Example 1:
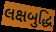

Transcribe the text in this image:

લક્ષબુદ્ધિ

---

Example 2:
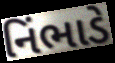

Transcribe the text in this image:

નિંભાડે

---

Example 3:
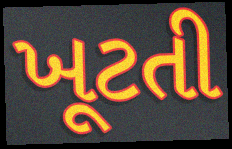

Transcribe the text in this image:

ખૂટતી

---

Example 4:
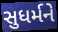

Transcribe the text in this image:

સુધર્મને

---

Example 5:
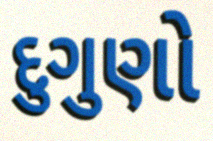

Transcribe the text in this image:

દુગુણો